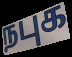
நபுக